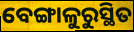
ବେଙ୍ଗାଳୁରୁସ୍ଥିତ